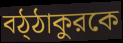
বঠ্ঠাকুরকে